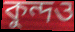
কুন্দও